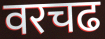
वरचढ